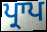
ਪ੍ਰਾਪ